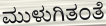
ಮುಳುಗಿತಂತೆ